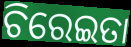
ଚିରେଇତା